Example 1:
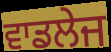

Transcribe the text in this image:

ਵਾਡਲੇਜ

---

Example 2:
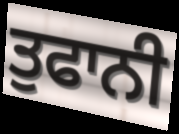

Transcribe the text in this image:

ਤੁਫਾਨੀ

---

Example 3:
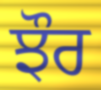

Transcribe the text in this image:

ਝੌਰ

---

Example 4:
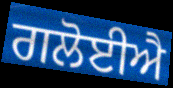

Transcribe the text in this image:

ਗਲੋਈਐ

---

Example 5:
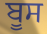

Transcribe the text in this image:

ਬੂਸ